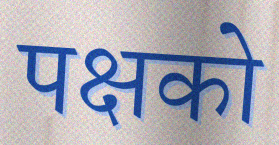
पक्षको